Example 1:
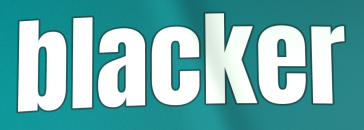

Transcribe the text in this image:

blacker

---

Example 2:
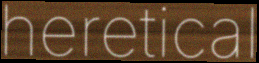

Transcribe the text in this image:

heretical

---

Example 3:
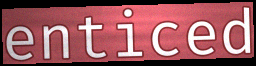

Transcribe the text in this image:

enticed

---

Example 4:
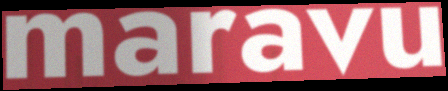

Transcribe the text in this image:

maravu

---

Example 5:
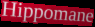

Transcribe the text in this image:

Hippomane